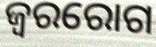
ଜ୍ୱରରୋଗ